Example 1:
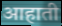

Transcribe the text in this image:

आहाती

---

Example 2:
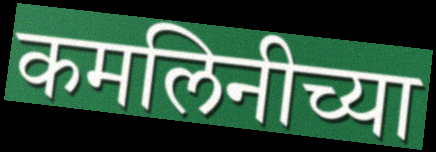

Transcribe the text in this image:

कमलिनीच्या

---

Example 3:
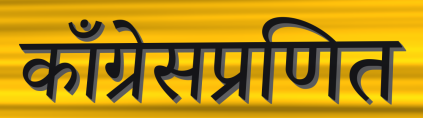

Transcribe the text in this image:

काँग्रेसप्रणित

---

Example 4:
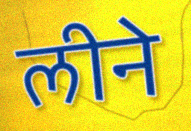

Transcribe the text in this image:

लीने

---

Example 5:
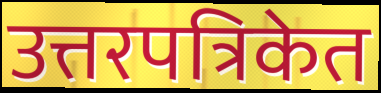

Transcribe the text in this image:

उत्तरपत्रिकेत